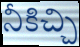
నీకిచ్చి